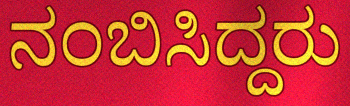
ನಂಬಿಸಿದ್ದರು